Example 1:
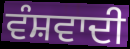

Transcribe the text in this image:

ਵੰਸ਼ਵਾਦੀ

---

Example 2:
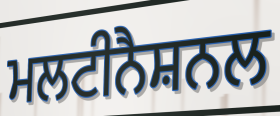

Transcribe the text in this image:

ਮਲਟੀਨੈਸ਼ਨਲ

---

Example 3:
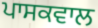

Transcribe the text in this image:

ਪਾਸਕਵਾਲ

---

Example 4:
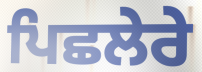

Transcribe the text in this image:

ਪਿਛਲੇਰੇ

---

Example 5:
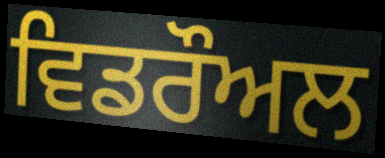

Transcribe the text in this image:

ਵਿਡਰੌਅਲ